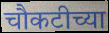
चौकटीच्या